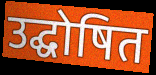
उद्घोषित